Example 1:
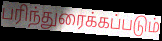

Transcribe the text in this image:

பரிந்துரைக்கப்படும்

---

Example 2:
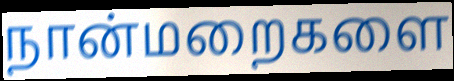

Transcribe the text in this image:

நான்மறைகளை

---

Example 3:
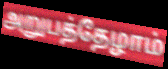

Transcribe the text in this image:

அறுபத்தேழாம்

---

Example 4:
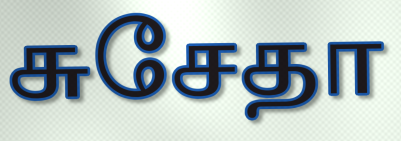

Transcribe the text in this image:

சுசேதா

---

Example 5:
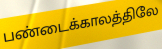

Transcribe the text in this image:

பண்டைக்காலத்திலே